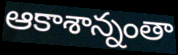
ఆకాశాన్నంతా